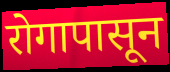
रोगापासून